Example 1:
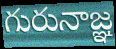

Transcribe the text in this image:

గురునాజ్ఞ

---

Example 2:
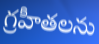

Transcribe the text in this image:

గ్రహీతలను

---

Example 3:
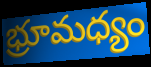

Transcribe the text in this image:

భ్రూమధ్యం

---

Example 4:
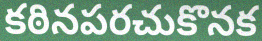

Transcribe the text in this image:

కఠినపరచుకొనక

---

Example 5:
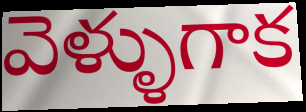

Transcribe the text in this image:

వెళ్ళుగాక